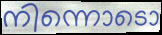
നിന്നൊടൊ